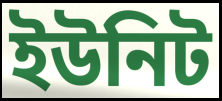
ইউনিট